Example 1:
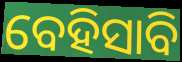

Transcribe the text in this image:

ବେହିସାବି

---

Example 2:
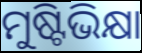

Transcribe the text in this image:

ମୁଷ୍ଟିଭିକ୍ଷା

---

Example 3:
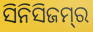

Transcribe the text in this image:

ସିନିସିଜମ୍‌ର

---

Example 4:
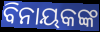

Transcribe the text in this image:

ବିନାୟକଙ୍କ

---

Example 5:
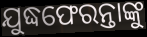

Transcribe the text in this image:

ଯୁଦ୍ଧଫେରନ୍ତାଙ୍କୁ